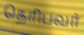
தெரிபவர்